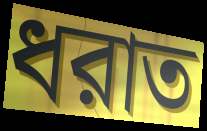
ধরাত